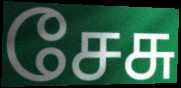
சேசு